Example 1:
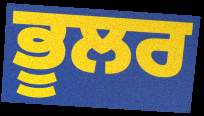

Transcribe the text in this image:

ਭੂਲਰ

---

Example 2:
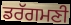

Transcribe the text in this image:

ਡਰੱਗਮਣੀ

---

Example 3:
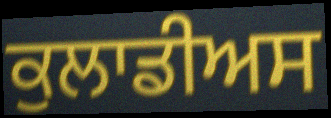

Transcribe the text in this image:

ਕੁਲਾਡੀਅਸ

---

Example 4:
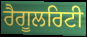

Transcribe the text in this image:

ਰੈਗੂਲਰਿਟੀ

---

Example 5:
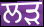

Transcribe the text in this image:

ਲੜ